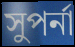
সুপর্না